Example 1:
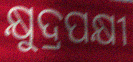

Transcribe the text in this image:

କ୍ଷୁଦ୍ରପକ୍ଷୀ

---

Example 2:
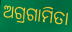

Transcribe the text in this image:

ଅଗ୍ରଗାମିତା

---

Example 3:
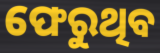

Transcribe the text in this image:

ଫେରୁଥିବ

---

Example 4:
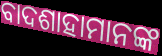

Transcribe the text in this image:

ବାଦଶାହାମାନଙ୍କ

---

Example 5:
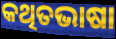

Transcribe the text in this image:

କଥିତଭାଷା